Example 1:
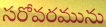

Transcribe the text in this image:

సరోవరమును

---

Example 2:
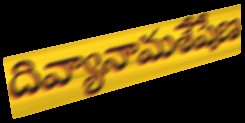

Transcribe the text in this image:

దివ్యానామశేషేణ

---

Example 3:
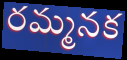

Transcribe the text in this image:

రమ్మనక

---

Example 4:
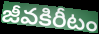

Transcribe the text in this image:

జీవకిరీటం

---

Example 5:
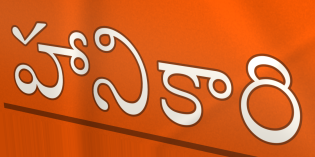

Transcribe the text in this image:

హానికారి